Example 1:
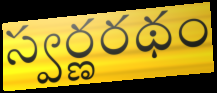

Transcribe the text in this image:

స్వర్ణరథం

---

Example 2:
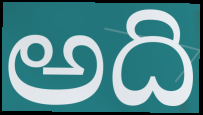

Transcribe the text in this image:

అది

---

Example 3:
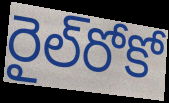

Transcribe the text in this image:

రైల్‌రోకో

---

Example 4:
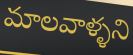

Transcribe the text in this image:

మాలవాళ్ళని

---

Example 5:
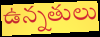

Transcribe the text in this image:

ఉన్నతులు